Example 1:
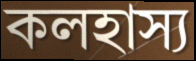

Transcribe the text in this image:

কলহাস্য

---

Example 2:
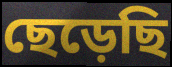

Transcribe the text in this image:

ছেড়েছি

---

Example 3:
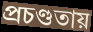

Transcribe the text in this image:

প্রচণ্ডতায়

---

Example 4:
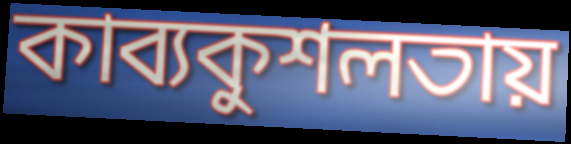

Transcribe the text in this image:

কাব্যকুশলতায়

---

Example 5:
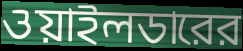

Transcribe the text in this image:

ওয়াইলডারের